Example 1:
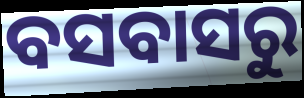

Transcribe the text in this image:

ବସବାସରୁ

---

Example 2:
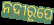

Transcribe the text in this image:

ନଦୀରୂପେ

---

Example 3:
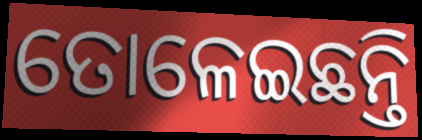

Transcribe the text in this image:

ତୋଳେଇଛନ୍ତି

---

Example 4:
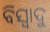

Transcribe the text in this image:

ବିସ୍ୱାଦୁ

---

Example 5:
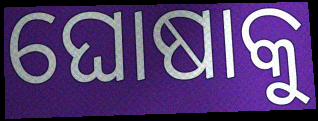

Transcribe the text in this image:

ଘୋଷାକୁ